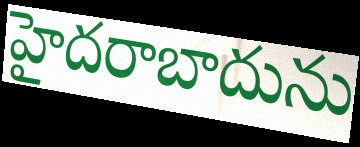
హైదరాబాదును